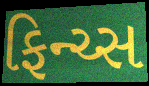
ફિન્ચ્સ